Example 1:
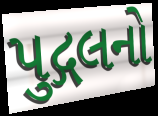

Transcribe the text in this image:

પુદ્ગલનો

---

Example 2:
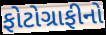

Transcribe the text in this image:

ફોટોગ્રાફીનો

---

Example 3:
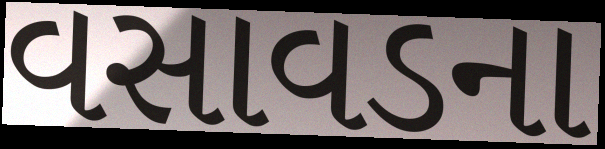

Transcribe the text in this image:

વસાવડના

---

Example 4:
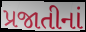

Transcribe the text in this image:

પ્રજાતીનાં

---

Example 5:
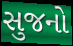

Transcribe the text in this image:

સુજનો